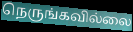
நெருங்கவில்லை